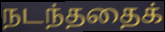
நடந்ததைக்